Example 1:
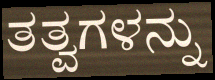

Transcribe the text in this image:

ತತ್ವಗಳನ್ನು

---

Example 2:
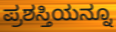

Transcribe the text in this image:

ಪ್ರಶಸ್ತಿಯನ್ನೂ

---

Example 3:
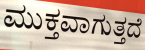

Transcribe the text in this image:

ಮುಕ್ತವಾಗುತ್ತದೆ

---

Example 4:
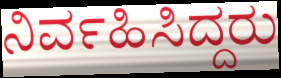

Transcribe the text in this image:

ನಿರ್ವಹಿಸಿದ್ದರು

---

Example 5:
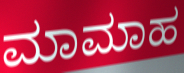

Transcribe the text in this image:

ಮಾಮಾಹ